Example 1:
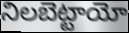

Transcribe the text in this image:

నిలబెట్టాయో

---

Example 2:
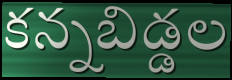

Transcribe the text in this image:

కన్నబిడ్డల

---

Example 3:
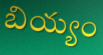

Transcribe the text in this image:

బియ్యం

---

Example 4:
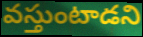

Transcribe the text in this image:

వస్తుంటాడని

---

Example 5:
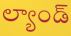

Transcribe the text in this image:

ల్యాండ్